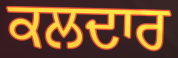
ਕਲਦਾਰ